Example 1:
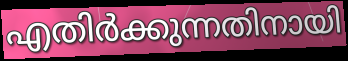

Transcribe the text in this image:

എതിർക്കുന്നതിനായി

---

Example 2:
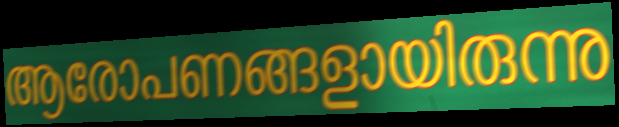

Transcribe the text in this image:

ആരോപണങ്ങളായിരുന്നു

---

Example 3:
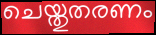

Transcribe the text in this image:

ചെയ്തുതരണം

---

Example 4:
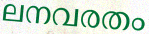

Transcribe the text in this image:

ലനവരതം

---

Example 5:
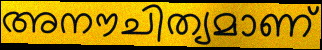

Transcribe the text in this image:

അനൗചിത്യമാണ്